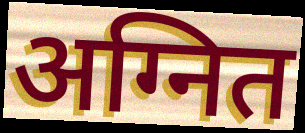
अग्नित